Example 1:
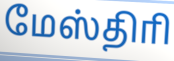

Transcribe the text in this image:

மேஸ்திரி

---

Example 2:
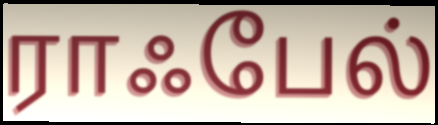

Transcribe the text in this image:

ராஃபேல்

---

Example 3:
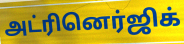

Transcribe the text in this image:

அட்ரினெர்ஜிக்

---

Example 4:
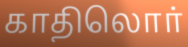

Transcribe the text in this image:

காதிலொர்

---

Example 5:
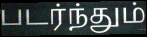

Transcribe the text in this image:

படர்ந்தும்